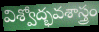
విశ్వోద్భవశాస్త్రం